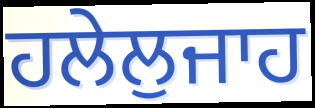
ਹਲੇਲੁਜਾਹ